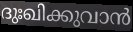
ദുഃഖിക്കുവാൻ